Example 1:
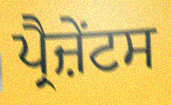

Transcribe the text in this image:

ਪ੍ਰੈਜ਼ੇਂਟਸ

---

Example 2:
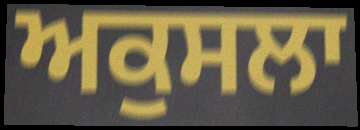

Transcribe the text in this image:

ਅਕੁਸਲਾ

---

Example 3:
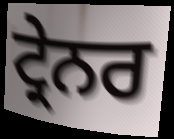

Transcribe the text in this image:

ਟ੍ਰੇਨਰ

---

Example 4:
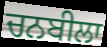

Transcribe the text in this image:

ਚਨਬੀਲਾ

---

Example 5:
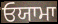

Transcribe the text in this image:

ਓਯਾਮਾ